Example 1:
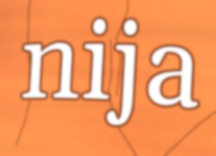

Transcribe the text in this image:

nija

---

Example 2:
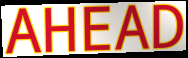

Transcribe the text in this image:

AHEAD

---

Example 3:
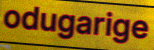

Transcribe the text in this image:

odugarige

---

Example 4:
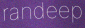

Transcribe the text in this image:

randeep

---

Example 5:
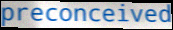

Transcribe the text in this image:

preconceived